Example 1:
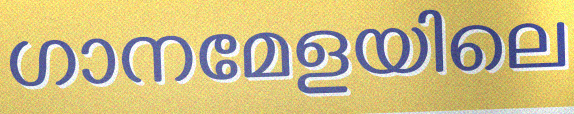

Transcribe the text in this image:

ഗാനമേളയിലെ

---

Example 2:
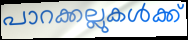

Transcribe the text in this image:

പാറക്കല്ലുകൾക്ക്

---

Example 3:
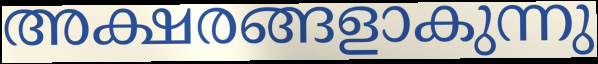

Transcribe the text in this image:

അക്ഷരങ്ങളാകുന്നു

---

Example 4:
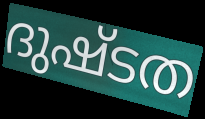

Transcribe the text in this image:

ദുഷ്ടത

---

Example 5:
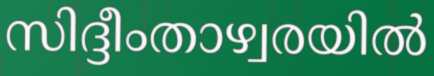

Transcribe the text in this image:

സിദ്ദീംതാഴ്വരയിൽ